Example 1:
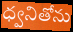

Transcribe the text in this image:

ధ్వనితోను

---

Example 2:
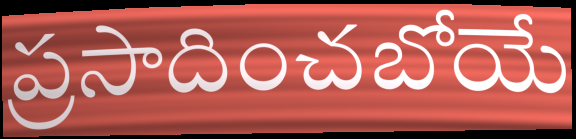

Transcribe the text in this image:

ప్రసాదించబోయే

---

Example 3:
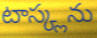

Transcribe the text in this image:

టాస్క్లను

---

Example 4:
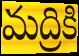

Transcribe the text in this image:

మద్రికి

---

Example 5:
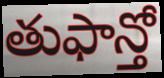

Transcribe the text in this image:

తుఫాన్తో